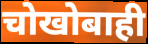
चोखोबाही